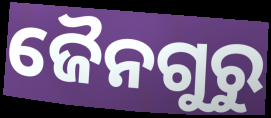
ଜୈନଗୁରୁ